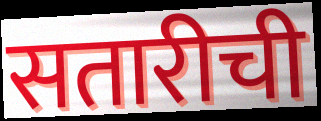
सतारीची